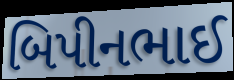
બિપીનભાઈ